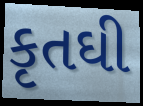
કૃતઘી